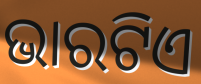
ଭାରଟିଏ